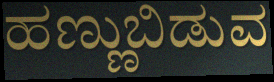
ಹಣ್ಣುಬಿಡುವ